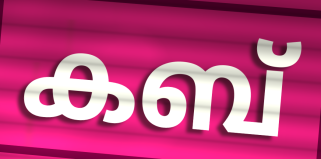
കബ്